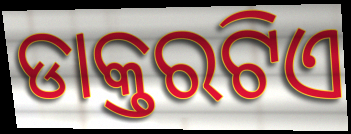
ଡାକ୍ତରଟିଏ